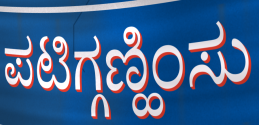
ಪಟಿಗ್ಗಣ್ಹಿಂಸು